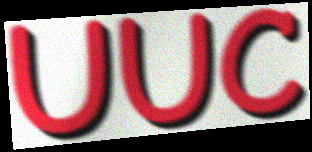
UUC